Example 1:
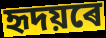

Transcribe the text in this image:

হৃদয়ৰে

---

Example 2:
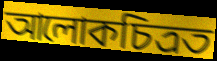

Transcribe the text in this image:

আলোকচিত্ৰত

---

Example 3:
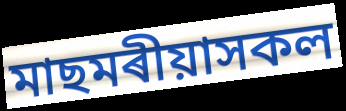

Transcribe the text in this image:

মাছমৰীয়াসকল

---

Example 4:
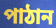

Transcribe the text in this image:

পাঠান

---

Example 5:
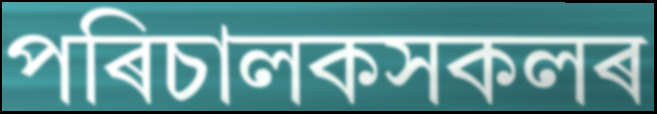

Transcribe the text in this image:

পৰিচালকসকলৰ